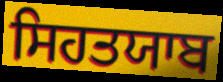
ਸਿਹਤਯਾਬ